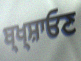
ਬ੍ਖ੍ਸ਼ਾਓਣ